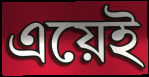
এয়েই